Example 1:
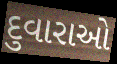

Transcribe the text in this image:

દુવારાઓ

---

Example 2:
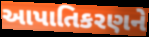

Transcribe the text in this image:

આપાતિકરણને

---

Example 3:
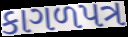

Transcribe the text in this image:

કાગળપત્ર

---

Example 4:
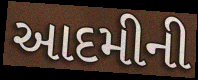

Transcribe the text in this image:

આદમીની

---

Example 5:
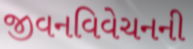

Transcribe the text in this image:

જીવનવિવેચનની